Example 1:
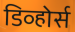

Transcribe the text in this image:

डिव्होर्स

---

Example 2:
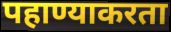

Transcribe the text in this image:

पहाण्याकरता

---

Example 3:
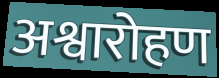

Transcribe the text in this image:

अश्वारोहण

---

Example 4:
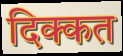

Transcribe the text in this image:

दिक्कत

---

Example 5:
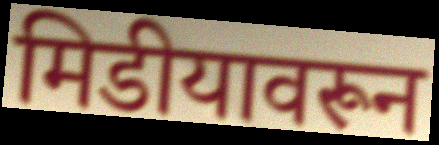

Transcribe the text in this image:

मिडीयावरून